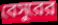
বেসুরের